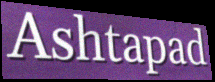
Ashtapad